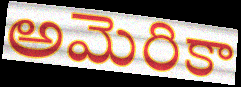
అమెరికా